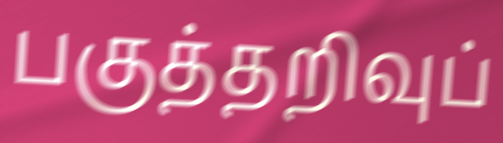
பகுத்தறிவுப்